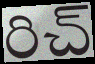
రిచ్